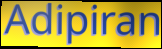
Adipiran